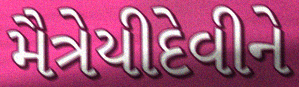
મૈત્રેયીદેવીને